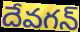
దేవగన్